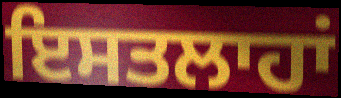
ਇਸਤਲਾਹਾਂ